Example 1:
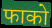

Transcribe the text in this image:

फाको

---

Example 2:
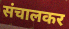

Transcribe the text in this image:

संचालकर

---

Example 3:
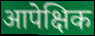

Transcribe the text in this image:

आपेक्षिक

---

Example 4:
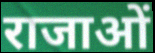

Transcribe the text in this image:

राजाओं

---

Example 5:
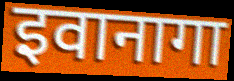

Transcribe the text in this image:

इवानागा